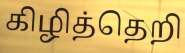
கிழித்தெறி